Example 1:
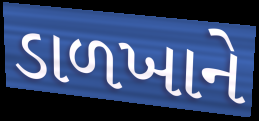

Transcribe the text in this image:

ડાળખાને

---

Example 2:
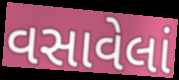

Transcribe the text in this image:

વસાવેલાં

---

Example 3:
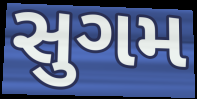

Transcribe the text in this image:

સુગમ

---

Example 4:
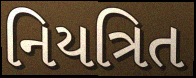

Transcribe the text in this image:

નિયત્રિત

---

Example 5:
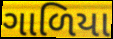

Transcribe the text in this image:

ગાળિયા